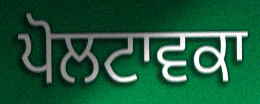
ਪੋਲਟਾਵਕਾ